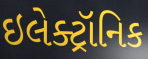
ઇલેક્ટ્રૉનિક